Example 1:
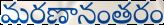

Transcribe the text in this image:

మరణానంతరం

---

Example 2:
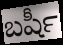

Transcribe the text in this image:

బషీర్‍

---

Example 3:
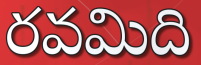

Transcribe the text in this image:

రవమిది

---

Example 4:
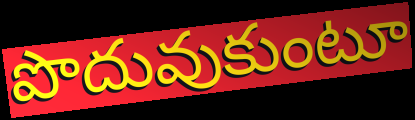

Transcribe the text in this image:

పొదువుకుంటూ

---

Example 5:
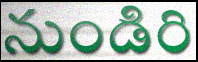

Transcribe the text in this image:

నుండిరి